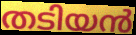
തടിയൻ